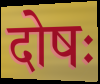
दोषः